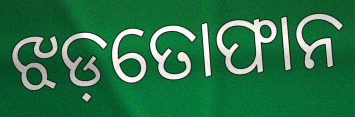
ଝଡ଼ତୋଫାନ